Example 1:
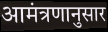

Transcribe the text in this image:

आमंत्रणानुसार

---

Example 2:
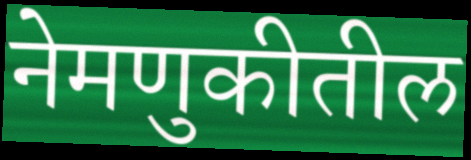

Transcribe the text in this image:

नेमणुकीतील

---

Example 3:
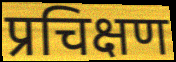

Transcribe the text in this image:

प्रचिक्षण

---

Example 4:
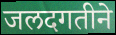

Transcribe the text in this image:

जलदगतीने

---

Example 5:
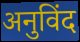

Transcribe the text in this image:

अनुविंद